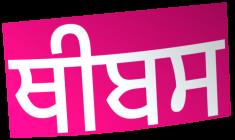
ਥੀਬਸ